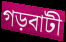
গড়বাটী